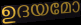
ഉദയമോ